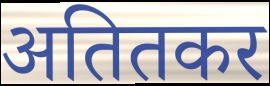
अतितकर